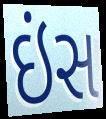
ઇંસ